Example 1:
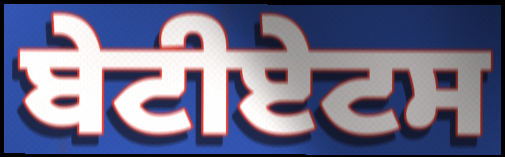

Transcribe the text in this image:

ਬੇਟੀਏਟਸ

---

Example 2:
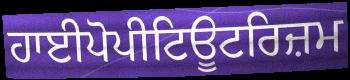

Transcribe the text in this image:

ਹਾਈਪੋਪੀਟਿਊਟਰਿਜ਼ਮ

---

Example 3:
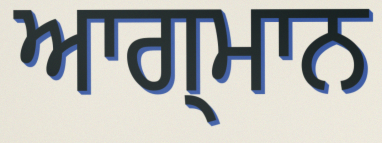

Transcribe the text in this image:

ਆਗ੍ਮਾਨ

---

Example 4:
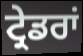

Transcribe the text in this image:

ਟ੍ਰੇਡਰਾਂ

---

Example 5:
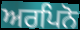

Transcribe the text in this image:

ਅਰਪਿਨੋ